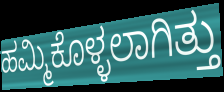
ಹಮ್ಮಿಕೊಳ್ಳಲಾಗಿತ್ತು